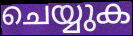
ചെയ്യുക